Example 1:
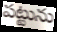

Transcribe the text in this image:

పట్టును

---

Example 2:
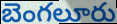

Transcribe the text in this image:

బెంగలూరు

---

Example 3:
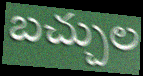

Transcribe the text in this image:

బచ్చుల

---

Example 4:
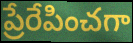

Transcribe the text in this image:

ప్రేరేపించగా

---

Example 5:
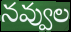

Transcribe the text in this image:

నవ్వుల